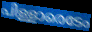
പിള്ളാരെടേം